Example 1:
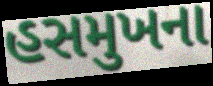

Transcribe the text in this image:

હસમુખના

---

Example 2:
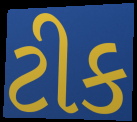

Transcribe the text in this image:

ટીક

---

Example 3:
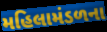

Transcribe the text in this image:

મહિલામંડળના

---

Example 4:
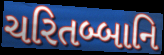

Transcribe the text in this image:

ચરિતબ્બાનિ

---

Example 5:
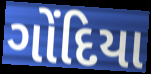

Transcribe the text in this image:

ગોંદિયા